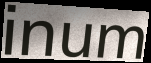
inum